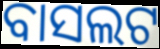
ବାସଲଟ